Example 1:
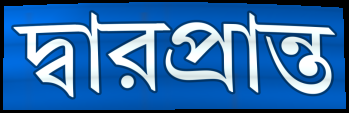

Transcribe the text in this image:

দ্বারপ্রান্ত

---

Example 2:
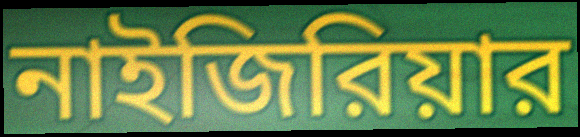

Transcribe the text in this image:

নাইজিরিয়ার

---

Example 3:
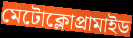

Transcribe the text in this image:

মেটোক্লোপ্রামাইড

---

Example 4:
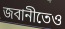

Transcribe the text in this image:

জবানীতেও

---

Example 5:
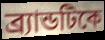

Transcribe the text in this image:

ব্র্যান্ডটিকে